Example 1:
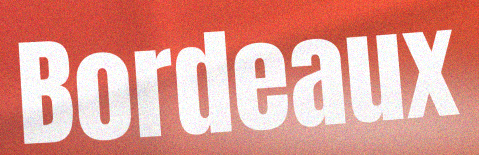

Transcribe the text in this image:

Bordeaux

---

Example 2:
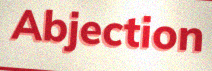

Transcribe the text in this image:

Abjection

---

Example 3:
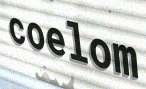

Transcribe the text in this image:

coelom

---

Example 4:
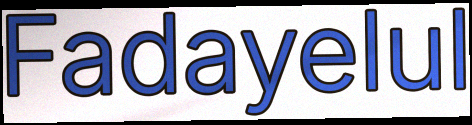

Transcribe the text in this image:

Fadayelul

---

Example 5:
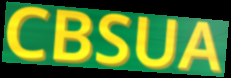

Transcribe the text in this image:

CBSUA